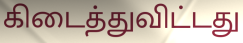
கிடைத்துவிட்டது